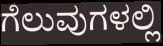
ಗೆಲುವುಗಳಲ್ಲಿ